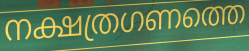
നക്ഷത്രഗണത്തെ